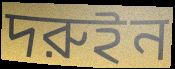
দরুইন